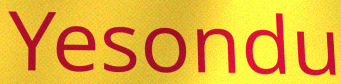
Yesondu